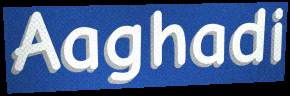
Aaghadi